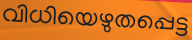
വിധിയെഴുതപ്പെട്ട